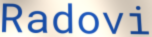
Radovi